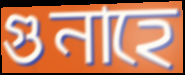
গুনাহে